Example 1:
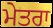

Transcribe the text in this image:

ਮੇਤਰਾ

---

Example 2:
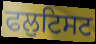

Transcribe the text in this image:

ਫਲੁਟਿਸਟ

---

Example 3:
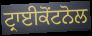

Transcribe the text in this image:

ਟ੍ਰਾਈਕੋਂਟਨੋਲ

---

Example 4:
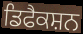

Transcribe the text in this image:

ਡਿਫੈਕਸ਼ਨ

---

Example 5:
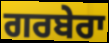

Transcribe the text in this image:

ਗਰਬੇਰਾ